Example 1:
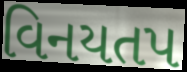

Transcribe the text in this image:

વિનયતપ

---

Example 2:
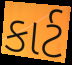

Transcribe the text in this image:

કાર્ટ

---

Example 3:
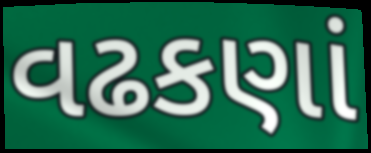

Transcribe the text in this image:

વઢકણાં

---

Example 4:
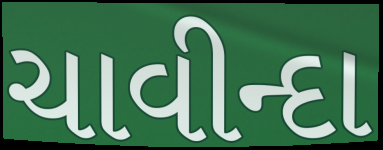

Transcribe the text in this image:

ચાવીન્દા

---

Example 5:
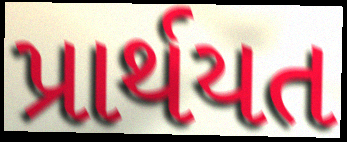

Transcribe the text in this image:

પ્રાર્થયત